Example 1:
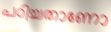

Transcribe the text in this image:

പഠിച്ചതാണോ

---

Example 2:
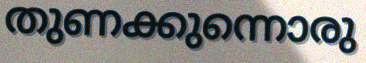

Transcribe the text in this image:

തുണക്കുന്നൊരു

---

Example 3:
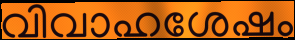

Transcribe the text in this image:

വിവാഹശേഷം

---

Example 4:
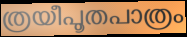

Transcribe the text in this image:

ത്രയീപൂതപാത്രം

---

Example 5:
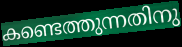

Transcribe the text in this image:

കണ്ടെത്തുന്നതിനു